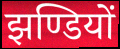
झण्डियों